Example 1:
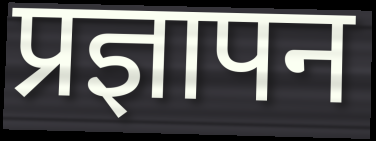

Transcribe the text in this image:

प्रज्ञापन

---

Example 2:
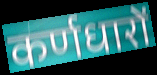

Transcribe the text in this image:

कर्णधारों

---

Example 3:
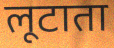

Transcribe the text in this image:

लूटाता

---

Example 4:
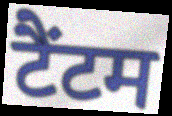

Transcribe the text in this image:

टैंटम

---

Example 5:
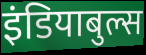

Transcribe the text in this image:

इंडियाबुल्‍स